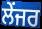
ਲੇਂਜਰ